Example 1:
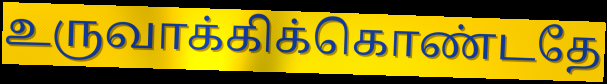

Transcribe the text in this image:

உருவாக்கிக்கொண்டதே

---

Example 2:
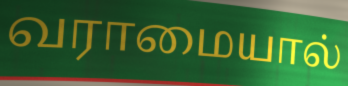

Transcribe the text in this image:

வராமையால்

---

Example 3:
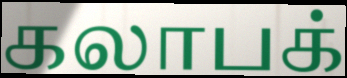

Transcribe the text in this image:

கலாபக்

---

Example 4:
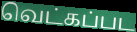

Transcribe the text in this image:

வெட்கப்பட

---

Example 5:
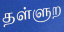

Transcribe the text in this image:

தள்ளுற